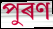
পুৰণ